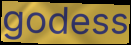
godess